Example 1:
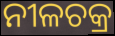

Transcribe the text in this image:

ନୀଳଚକ୍ର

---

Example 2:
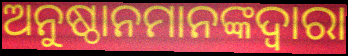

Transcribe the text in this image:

ଅନୁଷ୍ଠାନମାନଙ୍କଦ୍ଵାରା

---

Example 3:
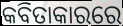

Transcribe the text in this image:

କବିତାକାରରେ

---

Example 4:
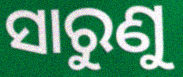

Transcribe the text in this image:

ସାରୁଣୁ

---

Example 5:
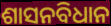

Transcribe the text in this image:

ଶାସନବିଧାନ